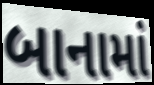
બાનામાં